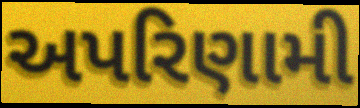
અપરિણામી